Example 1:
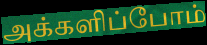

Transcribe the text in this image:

அக்களிப்போம்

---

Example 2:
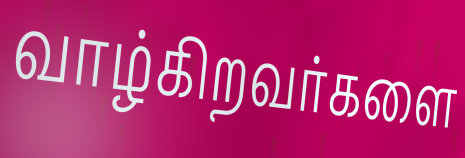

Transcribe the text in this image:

வாழ்கிறவர்களை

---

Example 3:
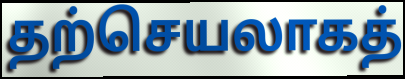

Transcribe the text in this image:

தற்செயலாகத்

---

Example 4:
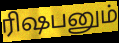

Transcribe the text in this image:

ரிஷபனும்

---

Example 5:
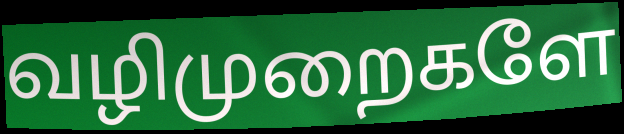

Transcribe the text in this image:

வழிமுறைகளே